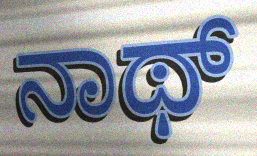
ನಾಥ್